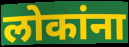
लोकांना